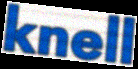
knell